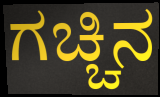
ಗಚ್ಚಿನ